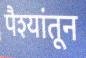
पैश्यांतून